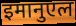
इमानुएल